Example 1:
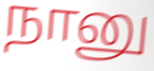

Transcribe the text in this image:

நானு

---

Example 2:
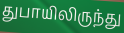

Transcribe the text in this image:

துபாயிலிருந்து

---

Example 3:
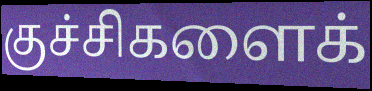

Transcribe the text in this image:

குச்சிகளைக்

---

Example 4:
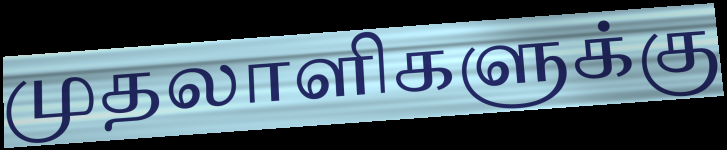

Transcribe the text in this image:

முதலாளிகளுக்கு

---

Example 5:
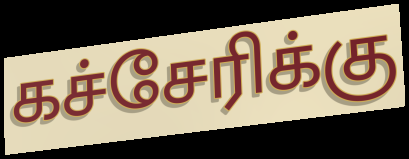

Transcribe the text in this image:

கச்சேரிக்கு